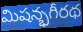
మిషన్భగీరథ